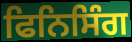
ਫਿਨਿਸਿੰਗ